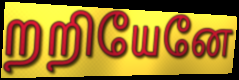
றறியேனே